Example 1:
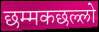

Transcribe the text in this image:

छम्मकछल्लो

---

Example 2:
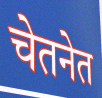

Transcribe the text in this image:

चेतनेत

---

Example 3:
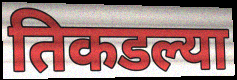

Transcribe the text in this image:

तिकडल्या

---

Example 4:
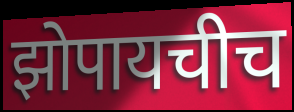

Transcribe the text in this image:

झोपायचीच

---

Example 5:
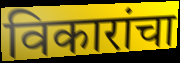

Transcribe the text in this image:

विकारांचा